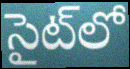
సైట్‌లో